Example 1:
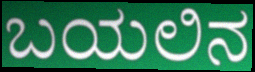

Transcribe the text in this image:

ಬಯಲಿನ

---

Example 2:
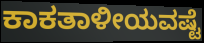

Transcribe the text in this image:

ಕಾಕತಾಳೀಯವಷ್ಟೆ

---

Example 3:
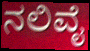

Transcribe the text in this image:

ನಲಿವೈ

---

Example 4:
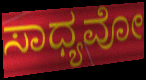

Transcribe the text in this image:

ಸಾಧ್ಯವೋ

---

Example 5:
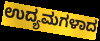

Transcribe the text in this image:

ಉದ್ಯಮಗಳಾದ